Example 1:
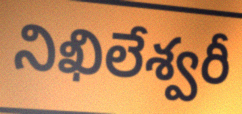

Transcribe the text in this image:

నిఖిలేశ్వరీ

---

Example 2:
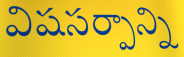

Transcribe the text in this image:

విషసర్పాన్ని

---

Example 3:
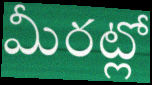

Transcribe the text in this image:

మీరట్లో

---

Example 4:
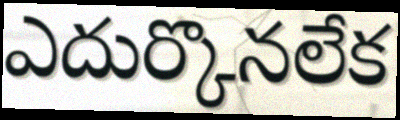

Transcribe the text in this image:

ఎదుర్కొనలేక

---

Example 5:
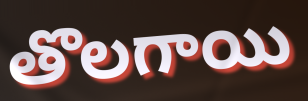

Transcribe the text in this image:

తొలగాయి